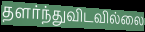
தளர்ந்துவிடவில்லை